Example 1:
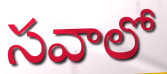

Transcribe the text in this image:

సవాలో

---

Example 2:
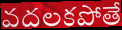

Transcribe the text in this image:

వదలకపోతే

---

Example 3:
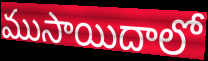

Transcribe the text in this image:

ముసాయిదాలో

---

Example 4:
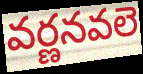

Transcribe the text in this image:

వర్ణనవలె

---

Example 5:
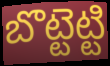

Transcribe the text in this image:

బొట్టెట్టి